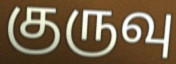
குருவு